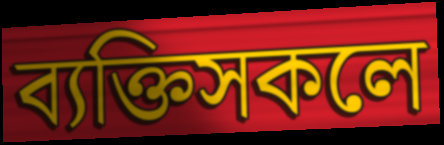
ব্যক্তিসকলে